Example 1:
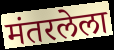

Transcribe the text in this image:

मंतरलेला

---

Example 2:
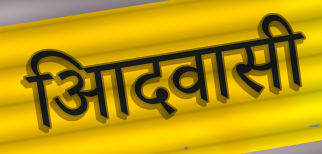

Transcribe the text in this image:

आिदवासी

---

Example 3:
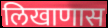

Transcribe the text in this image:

लिखाणास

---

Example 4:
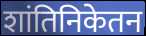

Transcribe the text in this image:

शांतिनिकेतन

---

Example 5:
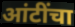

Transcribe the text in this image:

आंटींचा